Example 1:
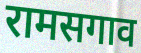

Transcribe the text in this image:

रामसगाव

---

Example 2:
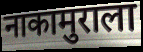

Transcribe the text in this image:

नाकामुराला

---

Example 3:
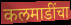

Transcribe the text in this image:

कलमाडींचा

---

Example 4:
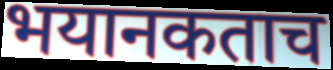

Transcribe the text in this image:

भयानकताच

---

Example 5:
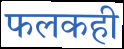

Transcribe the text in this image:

फलकही